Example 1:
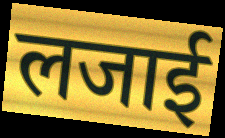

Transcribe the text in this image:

लजाई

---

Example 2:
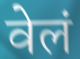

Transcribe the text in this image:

वेलं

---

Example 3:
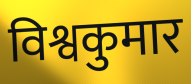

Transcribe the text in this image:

विश्वकुमार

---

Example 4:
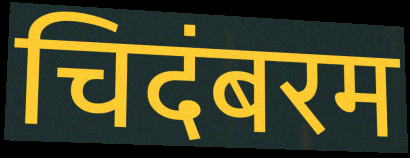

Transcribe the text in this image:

चिदंबरम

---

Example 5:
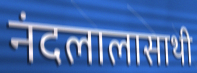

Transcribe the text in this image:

नंदलालासाथी